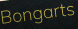
Bongarts